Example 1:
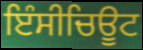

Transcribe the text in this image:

ਇੰਸੀਚਿਊਟ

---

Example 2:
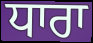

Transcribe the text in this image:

ਧਾਰਾ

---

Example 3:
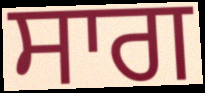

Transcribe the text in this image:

ਸਾਗ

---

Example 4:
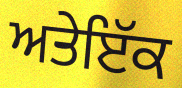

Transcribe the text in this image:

ਅਤੇਇੱਕ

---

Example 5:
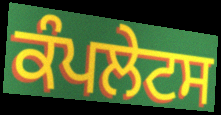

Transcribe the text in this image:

ਕੰਪਲੇਟਸ